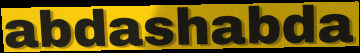
abdashabda